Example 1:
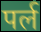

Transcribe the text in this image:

पर्ल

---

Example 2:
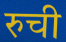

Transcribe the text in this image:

रुची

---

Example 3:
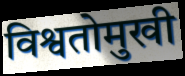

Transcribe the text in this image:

विश्वतोमुखी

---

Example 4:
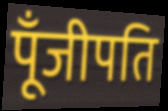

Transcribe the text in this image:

पूँजीपति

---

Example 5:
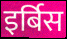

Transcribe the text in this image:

इर्बिस